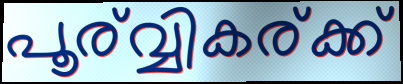
പൂര്വ്വികര്ക്ക്